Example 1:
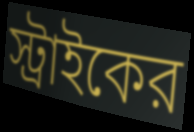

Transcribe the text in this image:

স্ট্রাইকের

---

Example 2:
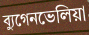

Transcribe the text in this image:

ব্যুগেনভেলিয়া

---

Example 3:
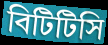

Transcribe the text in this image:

বিটিটিসি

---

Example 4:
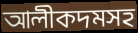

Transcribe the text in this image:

আলীকদমসহ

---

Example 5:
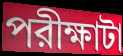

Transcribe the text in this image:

পরীক্ষাটা